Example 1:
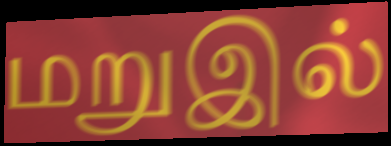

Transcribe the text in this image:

மறுஇல்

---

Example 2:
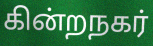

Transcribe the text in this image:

கின்றநகர்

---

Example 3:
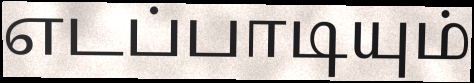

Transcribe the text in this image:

எடப்பாடியும்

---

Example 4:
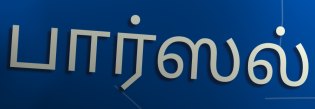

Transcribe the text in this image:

பார்ஸல்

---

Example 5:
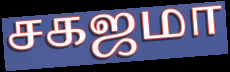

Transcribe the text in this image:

சகஜமா